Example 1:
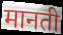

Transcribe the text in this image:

मानती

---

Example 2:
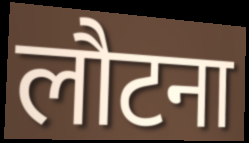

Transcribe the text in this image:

लौटना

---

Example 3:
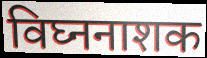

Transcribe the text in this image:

विघ्ननाशक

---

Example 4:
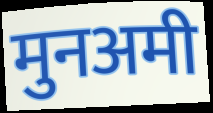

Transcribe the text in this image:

मुनअमी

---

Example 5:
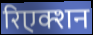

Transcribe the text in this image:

रिएक्शन